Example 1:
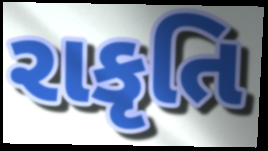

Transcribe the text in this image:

રાકૃતિ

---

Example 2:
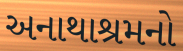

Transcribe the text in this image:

અનાથાશ્રમનો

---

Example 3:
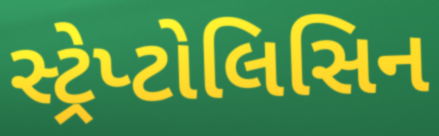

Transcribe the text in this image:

સ્ટ્રેપ્ટોલિસિન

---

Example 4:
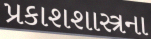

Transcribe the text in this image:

પ્રકાશશાસ્ત્રના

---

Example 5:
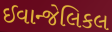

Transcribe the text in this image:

ઈવાન્જેલિકલ